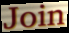
Join